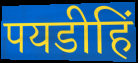
पयडीहिं